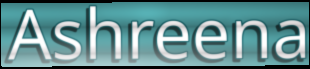
Ashreena